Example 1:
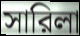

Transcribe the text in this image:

সারিলা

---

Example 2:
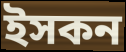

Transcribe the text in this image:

ইসকন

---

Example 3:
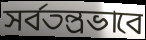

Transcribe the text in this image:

সর্বতন্ত্রভাবে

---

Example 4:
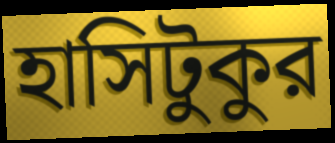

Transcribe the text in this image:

হাসিটুকুর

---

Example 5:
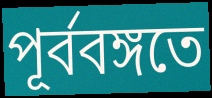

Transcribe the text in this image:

পূর্ববঙ্গতে